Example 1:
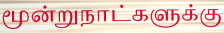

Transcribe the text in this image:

மூன்றுநாட்களுக்கு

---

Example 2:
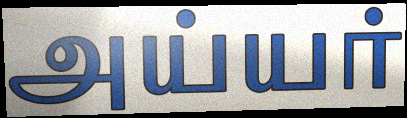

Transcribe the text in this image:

அய்யர்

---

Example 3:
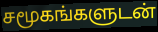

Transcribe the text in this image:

சமூகங்களுடன்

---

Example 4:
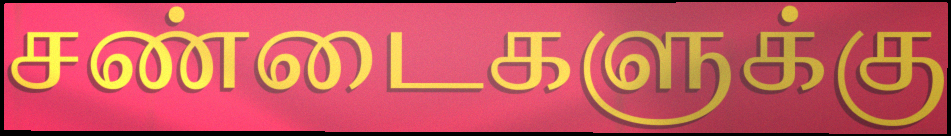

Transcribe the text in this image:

சண்டைகளுக்கு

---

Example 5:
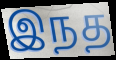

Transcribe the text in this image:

இநத